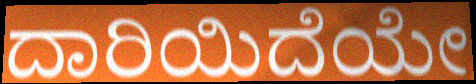
ದಾರಿಯಿದೆಯೇ